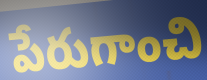
పేరుగాంచి